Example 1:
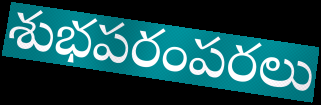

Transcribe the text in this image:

శుభపరంపరలు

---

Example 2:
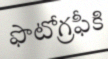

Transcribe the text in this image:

ఫొటోగ్రఫీకి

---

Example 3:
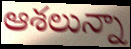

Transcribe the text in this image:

ఆశలున్నా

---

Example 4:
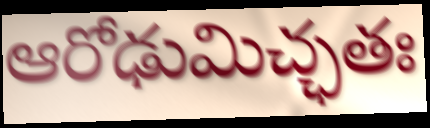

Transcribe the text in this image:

ఆరోఢుమిచ్ఛతః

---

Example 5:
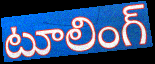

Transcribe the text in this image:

టూలింగ్